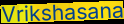
Vrikshasana